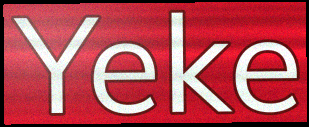
Yeke